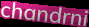
chandrni